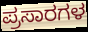
ಪ್ರಸಾರಗಳ